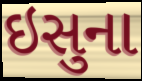
ઇસુના